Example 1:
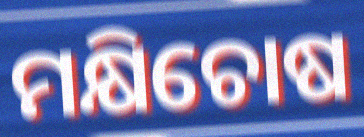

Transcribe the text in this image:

ମକ୍ଷିଚୋଷ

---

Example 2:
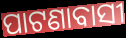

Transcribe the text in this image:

ପାଟଣାବାସୀ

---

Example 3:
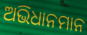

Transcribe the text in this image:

ଅଭିଧାନମାନ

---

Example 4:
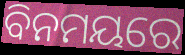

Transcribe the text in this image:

ବିନମୟରେ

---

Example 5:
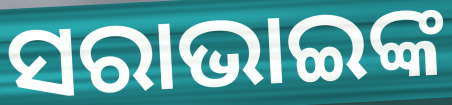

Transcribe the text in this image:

ସରାଭାଇଙ୍କ